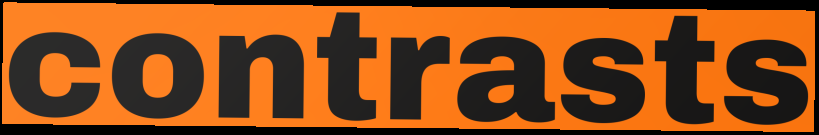
contrasts